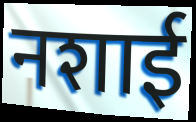
नशाई